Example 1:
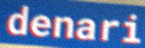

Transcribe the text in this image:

denari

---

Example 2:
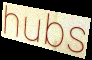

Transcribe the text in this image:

hubs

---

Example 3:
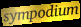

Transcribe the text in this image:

sympodium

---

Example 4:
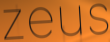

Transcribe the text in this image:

zeus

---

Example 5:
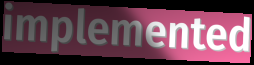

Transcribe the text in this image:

implemented